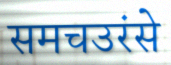
समचउरंसे